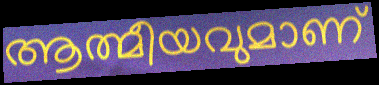
ആത്മീയവുമാണ്